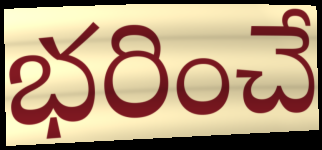
భరించే